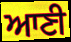
ਆਣੀ